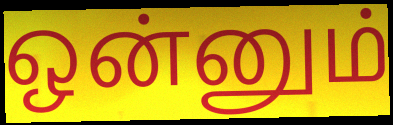
ஒன்னும்